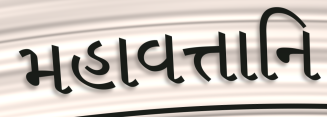
મહાવત્તાનિ